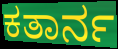
ಕತಾರ್ನ